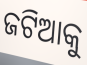
ଜଟିଆକୁ